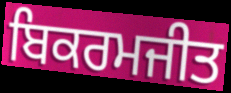
ਬਿਕਰਮਜੀਤ